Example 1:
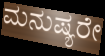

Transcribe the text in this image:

ಮನುಷ್ಯರೇ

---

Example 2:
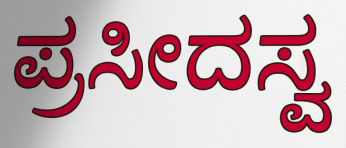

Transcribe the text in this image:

ಪ್ರಸೀದಸ್ವ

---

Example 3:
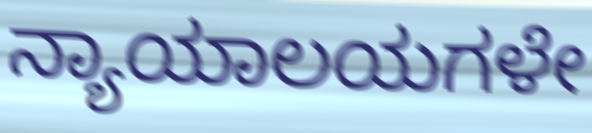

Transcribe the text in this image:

ನ್ಯಾಯಾಲಯಗಳೇ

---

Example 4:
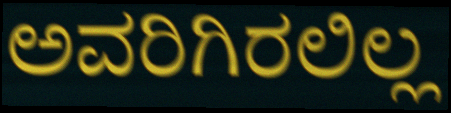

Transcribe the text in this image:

ಅವರಿಗಿರಲಿಲ್ಲ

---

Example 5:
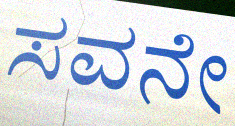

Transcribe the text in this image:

ಸವನೇ